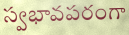
స్వభావపరంగా